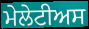
ਮੇਲੇਟੀਅਸ